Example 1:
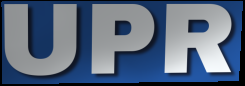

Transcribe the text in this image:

UPR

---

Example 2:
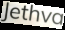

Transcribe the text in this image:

Jethva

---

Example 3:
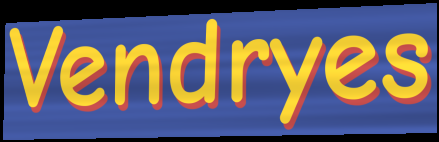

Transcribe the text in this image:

Vendryes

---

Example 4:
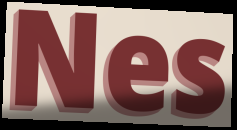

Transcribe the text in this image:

Nes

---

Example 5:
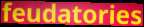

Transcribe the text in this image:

feudatories